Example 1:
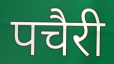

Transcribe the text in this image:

पचैरी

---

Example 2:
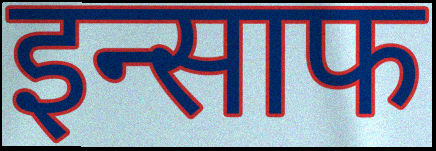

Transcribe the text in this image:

इन्साफ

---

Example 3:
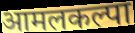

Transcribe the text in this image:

आमलकल्पा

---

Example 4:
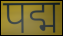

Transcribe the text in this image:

पद्म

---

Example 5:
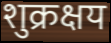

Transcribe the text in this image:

शुक्रक्षय